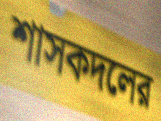
শাসকদলের